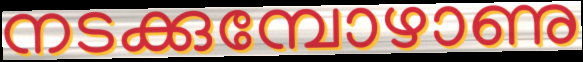
നടക്കുമ്പോഴാണു